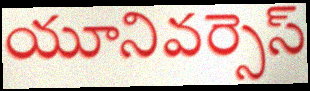
యూనివర్సెస్